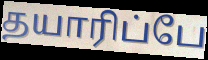
தயாரிப்பே